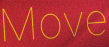
Move